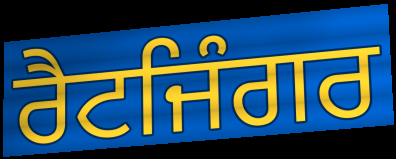
ਰੈਟਜਿੰਗਰ